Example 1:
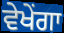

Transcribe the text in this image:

ਵੇਖੇਂਗਾ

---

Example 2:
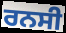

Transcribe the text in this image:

ਰਨਸੀ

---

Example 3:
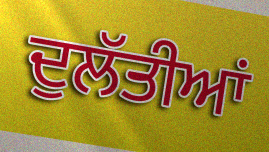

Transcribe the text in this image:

ਦੁਲੱਤੀਆਂ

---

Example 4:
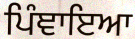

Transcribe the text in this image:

ਪਿੰਞਾਇਆ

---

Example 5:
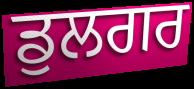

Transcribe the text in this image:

ਡੁਲਗਰ